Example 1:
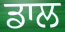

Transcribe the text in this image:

ਡਾਲ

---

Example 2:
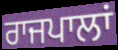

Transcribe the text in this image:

ਰਾਜਪਾਲਾਂ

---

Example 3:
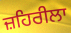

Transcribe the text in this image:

ਜ਼ਹਿਰੀਲਾ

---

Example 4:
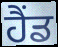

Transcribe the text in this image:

ਹੈਂਡ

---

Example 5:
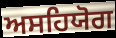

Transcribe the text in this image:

ਅਸਹਿਯੋਗ